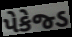
પેકેજ્ડ